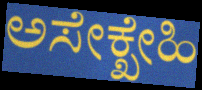
ಅಸೇಕ್ಖೇಹಿ